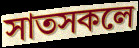
সাতসকলে